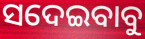
ସଦେଇବାବୁ